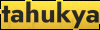
tahukya